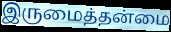
இருமைத்தன்மை